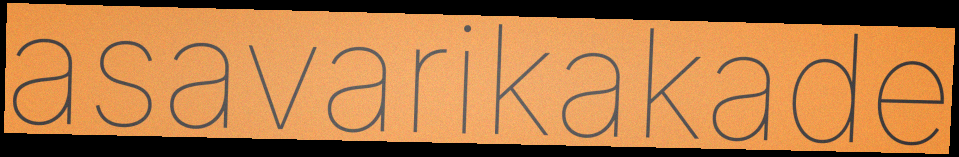
asavarikakade